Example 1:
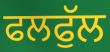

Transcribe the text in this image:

ਫਲਫੁੱਲ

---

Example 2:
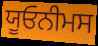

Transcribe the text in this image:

ਯੂਓਨੀਮਸ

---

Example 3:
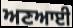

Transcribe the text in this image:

ਅਣਆਈ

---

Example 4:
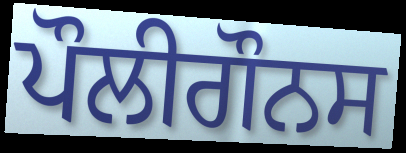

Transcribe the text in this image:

ਪੌਲੀਗੌਨਸ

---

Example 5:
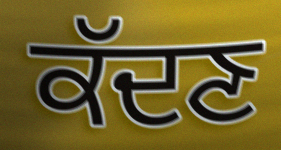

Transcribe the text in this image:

ਕੱਦਣ